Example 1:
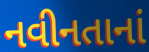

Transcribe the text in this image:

નવીનતાનાં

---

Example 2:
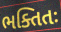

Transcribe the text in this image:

ભક્તિતઃ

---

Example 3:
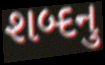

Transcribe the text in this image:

શબ્દનુ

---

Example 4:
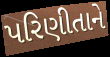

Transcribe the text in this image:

પરિણીતાને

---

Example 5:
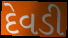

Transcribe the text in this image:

દેવડી